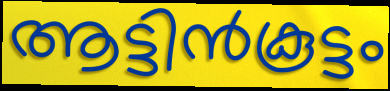
ആട്ടിൻകൂട്ടം